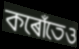
কৰোঁতেও